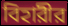
বিহারীর